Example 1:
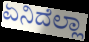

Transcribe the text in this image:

ಏನಿದೆಲ್ಲಾ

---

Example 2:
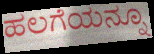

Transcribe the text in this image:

ಹಲಗೆಯನ್ನೂ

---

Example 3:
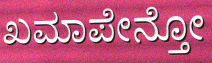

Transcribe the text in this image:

ಖಮಾಪೇನ್ತೋ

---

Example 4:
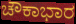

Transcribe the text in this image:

ಚೌಕಾಭಾರ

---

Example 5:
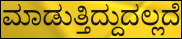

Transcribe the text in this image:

ಮಾಡುತ್ತಿದ್ದುದಲ್ಲದೆ